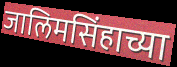
जालिमसिंहाच्या